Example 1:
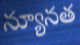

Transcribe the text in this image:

న్యూనత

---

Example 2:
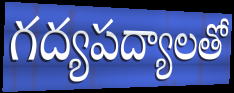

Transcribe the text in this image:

గద్యపద్యాలతో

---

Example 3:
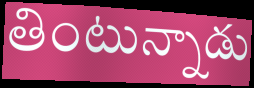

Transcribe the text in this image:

తింటున్నాడు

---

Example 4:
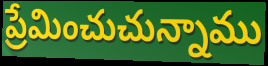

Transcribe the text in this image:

ప్రేమించుచున్నాము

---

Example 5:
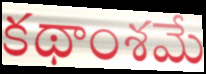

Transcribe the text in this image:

కథాంశమే